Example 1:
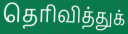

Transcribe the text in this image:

தெரிவித்துக்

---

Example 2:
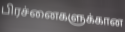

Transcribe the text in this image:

பிரச்னைகளுக்கான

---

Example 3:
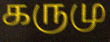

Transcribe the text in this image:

கருமு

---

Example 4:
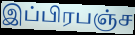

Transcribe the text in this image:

இப்பிரபஞ்ச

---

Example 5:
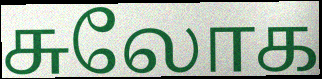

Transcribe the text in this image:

சுலோக